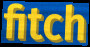
fitch